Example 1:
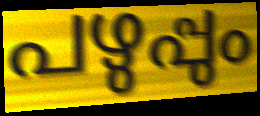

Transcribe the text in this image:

പഴുപ്പും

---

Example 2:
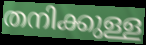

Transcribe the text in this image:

തനിക്കുള്ള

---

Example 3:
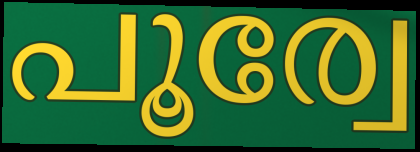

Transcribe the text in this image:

പൂര്വേ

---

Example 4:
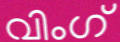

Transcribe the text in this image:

വിംഗ്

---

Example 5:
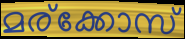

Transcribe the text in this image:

മര്ക്കോസ്